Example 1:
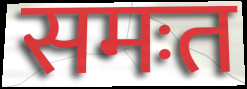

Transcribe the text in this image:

समःत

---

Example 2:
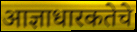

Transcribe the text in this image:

आज्ञाधारकतेचे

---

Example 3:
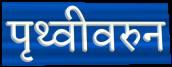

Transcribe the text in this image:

पृथ्वीवरुन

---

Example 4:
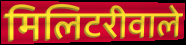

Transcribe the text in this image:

मिलिटरीवाले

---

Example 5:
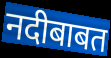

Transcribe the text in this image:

नदीबाबत